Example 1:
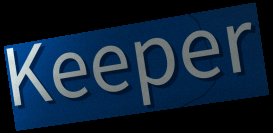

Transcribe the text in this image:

Keeper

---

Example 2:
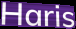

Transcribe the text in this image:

Haris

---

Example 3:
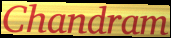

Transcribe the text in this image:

Chandram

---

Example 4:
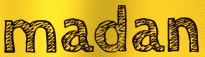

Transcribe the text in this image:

madan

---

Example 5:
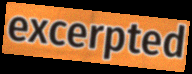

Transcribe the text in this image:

excerpted